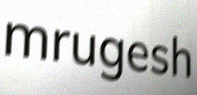
mrugesh